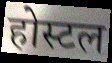
होस्टल